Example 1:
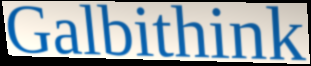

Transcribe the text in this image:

Galbithink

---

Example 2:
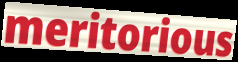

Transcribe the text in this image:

meritorious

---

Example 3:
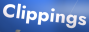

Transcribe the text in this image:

Clippings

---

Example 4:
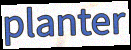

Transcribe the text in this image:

planter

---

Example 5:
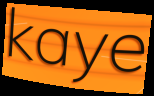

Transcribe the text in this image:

kaye